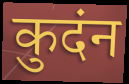
कुदंन